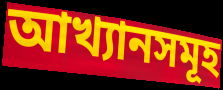
আখ্যানসমূহ